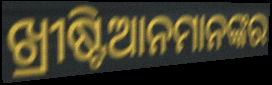
ଖ୍ରୀଷ୍ଟିଆନମାନଙ୍କର